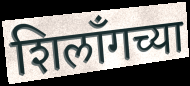
शिलॉंगच्या